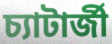
চ্যাটার্জী